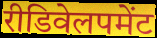
रीडिवेलपमेंट